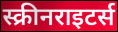
स्क्रीनराइटर्स